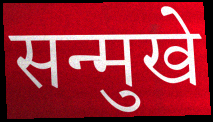
सन्मुखे